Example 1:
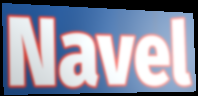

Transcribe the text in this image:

Navel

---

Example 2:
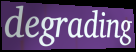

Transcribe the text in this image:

degrading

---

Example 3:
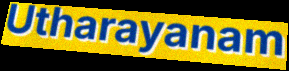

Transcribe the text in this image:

Utharayanam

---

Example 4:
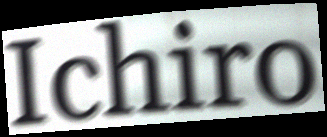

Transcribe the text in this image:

Ichiro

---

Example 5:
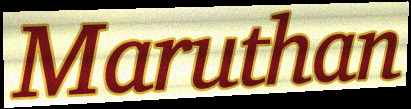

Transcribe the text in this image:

Maruthan